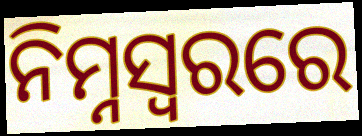
ନିମ୍ନସ୍ୱରରେ